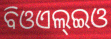
ବିଓଏଲ୍ଇଓ